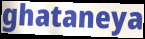
ghataneya